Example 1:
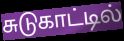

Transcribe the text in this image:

சுடுகாட்டில்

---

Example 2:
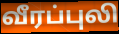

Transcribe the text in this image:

வீரப்புலி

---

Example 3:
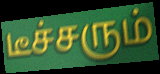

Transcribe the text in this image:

டீச்சரும்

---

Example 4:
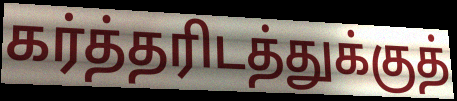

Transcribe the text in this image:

கர்த்தரிடத்துக்குத்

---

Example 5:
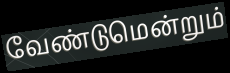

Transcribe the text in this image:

வேண்டுமென்றும்